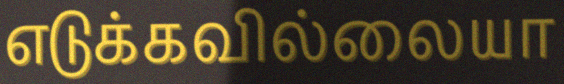
எடுக்கவில்லையா